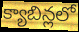
క్యాబిన్లలో